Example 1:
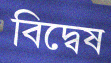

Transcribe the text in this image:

বিদ্বেষ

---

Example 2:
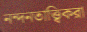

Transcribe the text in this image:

নন্দনতাত্ত্বিকরা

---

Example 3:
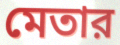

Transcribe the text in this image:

মেতার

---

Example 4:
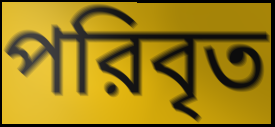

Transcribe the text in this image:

পরিবৃত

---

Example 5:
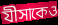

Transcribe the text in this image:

যীসাকেও